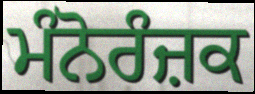
ਮੰਨੋਰੰਜ਼ਕ